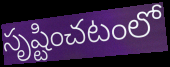
సృష్టించటంలో